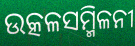
ଉତ୍କଳସମ୍ମିଳନୀ